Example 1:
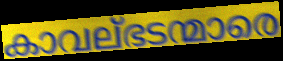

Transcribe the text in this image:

കാവല്ഭടന്മാരെ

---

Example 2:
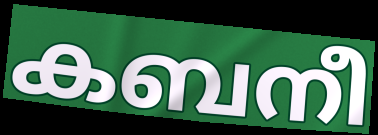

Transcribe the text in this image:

കബനീ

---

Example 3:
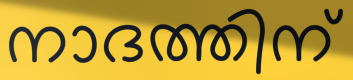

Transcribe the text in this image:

നാദത്തിന്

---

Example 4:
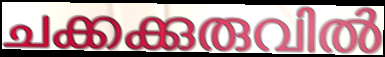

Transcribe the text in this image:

ചക്കക്കുരുവിൽ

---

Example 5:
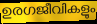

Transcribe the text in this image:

ഉരഗജീവികളും